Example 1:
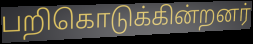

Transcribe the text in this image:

பறிகொடுக்கின்றனர்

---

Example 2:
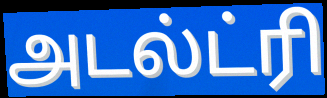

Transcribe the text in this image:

அடல்ட்ரி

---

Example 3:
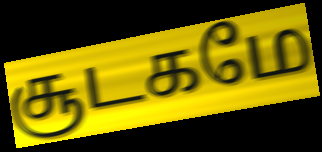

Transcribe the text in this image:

சூடகமே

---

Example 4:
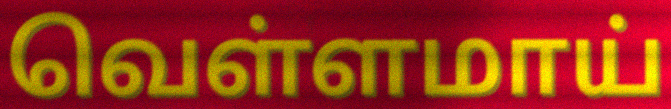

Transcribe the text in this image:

வெள்ளமாய்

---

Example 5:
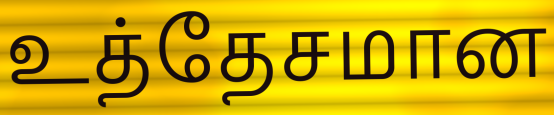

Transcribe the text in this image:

உத்தேசமான